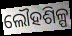
ଲୌହଶିଳ୍ପ